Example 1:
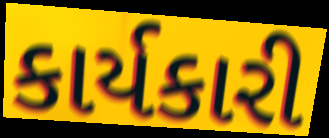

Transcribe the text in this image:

કાર્યકારી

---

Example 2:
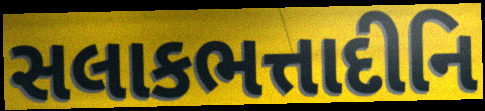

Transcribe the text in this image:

સલાકભત્તાદીનિ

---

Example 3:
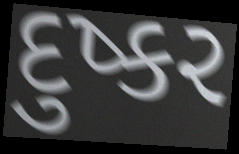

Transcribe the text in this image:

દુષ્કર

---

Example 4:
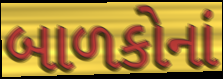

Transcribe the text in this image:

બાળકોનાં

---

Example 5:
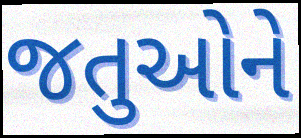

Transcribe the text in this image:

જતુઓને